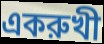
একরুখী